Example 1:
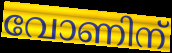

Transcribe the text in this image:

വോണിന്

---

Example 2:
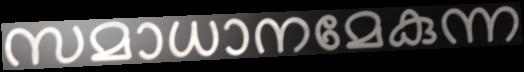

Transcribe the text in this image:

സമാധാനമേകുന്ന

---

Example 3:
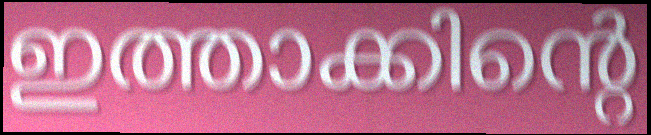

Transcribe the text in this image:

ഇത്താക്കിന്റെ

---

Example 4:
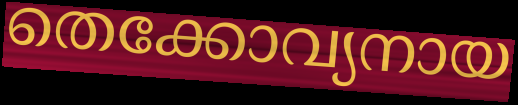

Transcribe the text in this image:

തെക്കോവ്യനായ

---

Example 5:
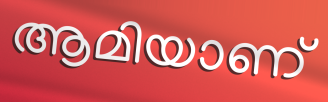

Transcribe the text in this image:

ആമിയാണ്